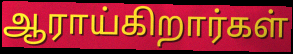
ஆராய்கிறார்கள்